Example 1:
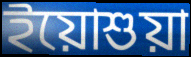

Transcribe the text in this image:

ইয়োশুয়া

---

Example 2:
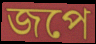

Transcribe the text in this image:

জপে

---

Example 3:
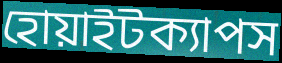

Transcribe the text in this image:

হোয়াইটক্যাপস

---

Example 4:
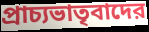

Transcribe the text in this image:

প্রাচ্যভাতৃবাদের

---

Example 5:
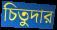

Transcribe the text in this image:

চিতুদার